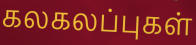
கலகலப்புகள்